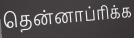
தென்னாப்ரிக்க